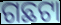
ଗଛଟା